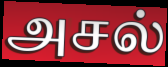
அசல்